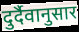
दुर्दैवानुसार